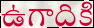
ఉగాదికి